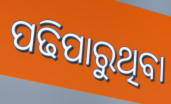
ପଢିପାରୁଥିବା